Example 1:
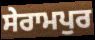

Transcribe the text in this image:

ਸੇਰਾਮਪੁਰ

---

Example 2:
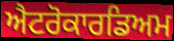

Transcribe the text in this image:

ਐਟਰੋਕਾਰਡਿਅਮ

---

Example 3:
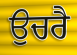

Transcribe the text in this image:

ਉਚਰੈ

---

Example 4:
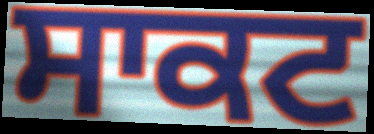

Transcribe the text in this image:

ਸਾਕਟ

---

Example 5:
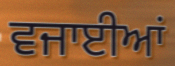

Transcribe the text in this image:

ਵਜਾਈਆਂ